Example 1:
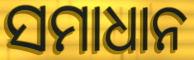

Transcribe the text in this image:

ସମାଧାନ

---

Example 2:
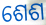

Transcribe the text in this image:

ଶେଶ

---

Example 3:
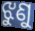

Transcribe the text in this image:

ଝୁଣୁ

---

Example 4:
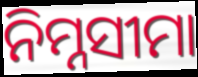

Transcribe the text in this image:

ନିମ୍ନସୀମା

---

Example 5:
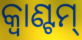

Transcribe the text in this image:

କ୍ଵାଣ୍ଟମ୍